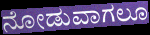
ನೋಡುವಾಗಲೂ